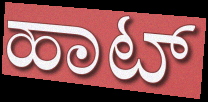
ಹಾಟ್